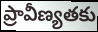
ప్రావీణ్యతకు